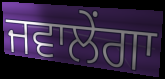
ਜਵਾਲੇਂਗਾ